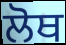
ਲੋਥ